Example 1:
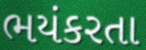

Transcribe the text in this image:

ભયંકરતા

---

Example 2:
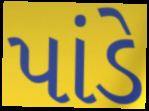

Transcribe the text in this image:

પાંડે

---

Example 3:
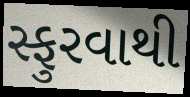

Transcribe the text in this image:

સ્ફુરવાથી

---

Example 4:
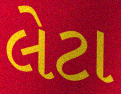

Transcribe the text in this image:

લેટા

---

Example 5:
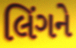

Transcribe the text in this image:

લિંગને